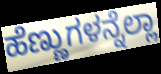
ಹೆಣ್ಣುಗಳನ್ನೆಲ್ಲಾ